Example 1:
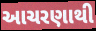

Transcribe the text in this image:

આચરણાથી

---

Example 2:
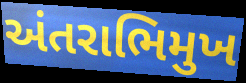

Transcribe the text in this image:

અંતરાભિમુખ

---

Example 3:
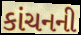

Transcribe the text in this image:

કાંચનની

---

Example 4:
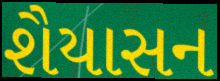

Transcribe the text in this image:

શૈયાસન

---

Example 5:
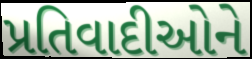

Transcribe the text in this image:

પ્રતિવાદીઓને